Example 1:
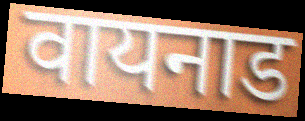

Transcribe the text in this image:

वायनाड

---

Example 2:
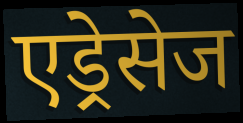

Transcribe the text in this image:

एड्रेसेज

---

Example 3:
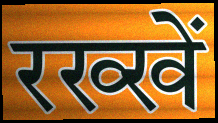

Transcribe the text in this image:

रख्खें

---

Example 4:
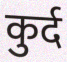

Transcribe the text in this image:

कुर्द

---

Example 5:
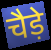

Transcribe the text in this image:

चैड़े